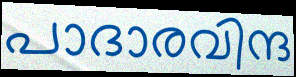
പാദാരവിന്ദ